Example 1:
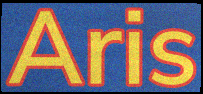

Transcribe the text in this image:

Aris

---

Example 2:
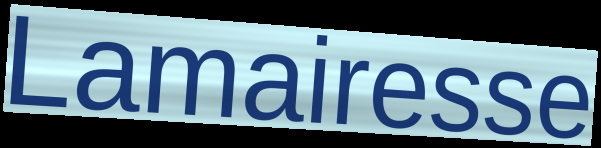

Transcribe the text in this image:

Lamairesse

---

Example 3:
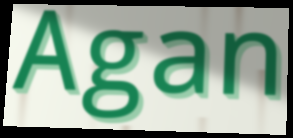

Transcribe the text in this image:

Agan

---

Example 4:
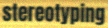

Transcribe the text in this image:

stereotyping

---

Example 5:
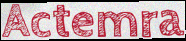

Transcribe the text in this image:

Actemra